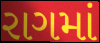
રાગમાં